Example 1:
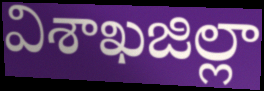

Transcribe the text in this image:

విశాఖజిల్లా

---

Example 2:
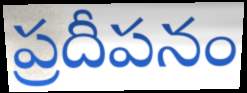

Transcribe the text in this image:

ప్రదీపనం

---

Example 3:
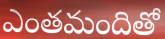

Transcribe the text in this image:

ఎంతమందితో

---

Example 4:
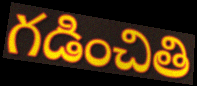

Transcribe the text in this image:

గడించితి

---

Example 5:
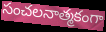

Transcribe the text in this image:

సంచలనాత్మకంగా